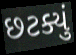
છટક્યું